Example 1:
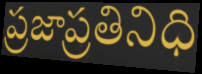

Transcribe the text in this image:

ప్రజాప్రతినిధి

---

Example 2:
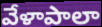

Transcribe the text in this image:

వేళాపాలా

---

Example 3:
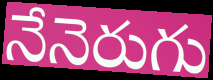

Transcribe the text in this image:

నేనెరుగు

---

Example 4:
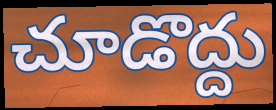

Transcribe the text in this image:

చూడొద్దు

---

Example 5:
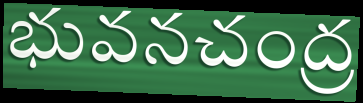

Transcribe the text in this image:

భువనచంద్ర